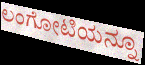
ಲಂಗೋಟಿಯನ್ನೂ